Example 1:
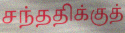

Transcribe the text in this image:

சந்ததிக்குத்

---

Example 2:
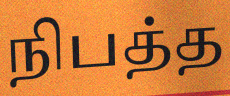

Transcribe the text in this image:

நிபத்த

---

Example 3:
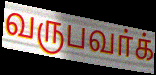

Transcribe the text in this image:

வருபவர்க்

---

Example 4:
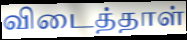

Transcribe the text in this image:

விடைத்தாள்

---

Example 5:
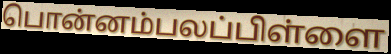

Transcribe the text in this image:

பொன்னம்பலப்பிள்ளை